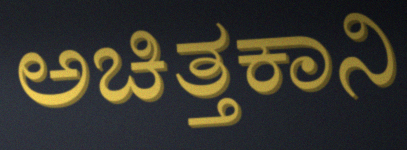
ಅಚಿತ್ತಕಾನಿ